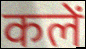
कलें